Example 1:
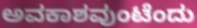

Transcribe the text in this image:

ಅವಕಾಶವುಂಟೆಂದು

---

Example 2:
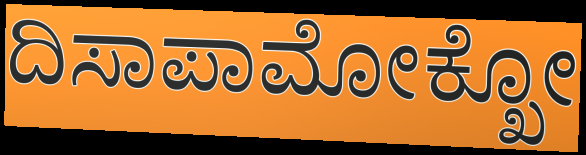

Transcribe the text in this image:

ದಿಸಾಪಾಮೋಕ್ಖೋ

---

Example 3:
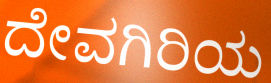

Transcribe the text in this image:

ದೇವಗಿರಿಯ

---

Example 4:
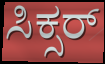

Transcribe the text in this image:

ಸಿಕ್ಸರ್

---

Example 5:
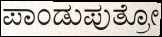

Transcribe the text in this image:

ಪಾಂಡುಪುತ್ರೋ